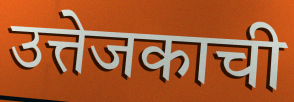
उत्तेजकाची